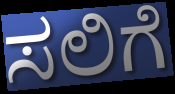
ಸಲಿಗೆ